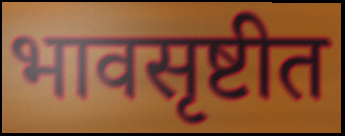
भावसृष्टीत